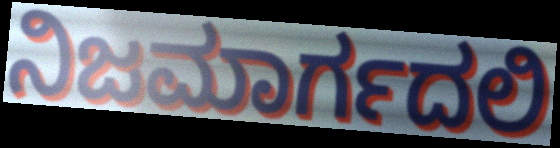
ನಿಜಮಾರ್ಗದಲಿ